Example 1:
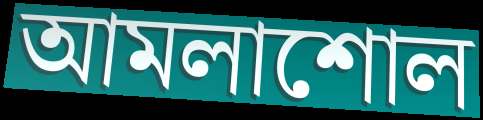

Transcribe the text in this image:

আমলাশোল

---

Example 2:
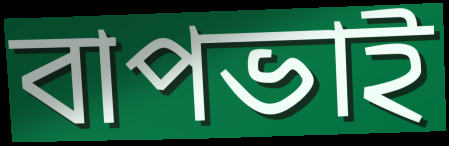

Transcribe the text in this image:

বাপভাই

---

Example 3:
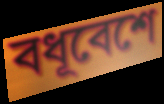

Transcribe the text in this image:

বধূবেশে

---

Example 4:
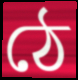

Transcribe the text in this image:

ঠে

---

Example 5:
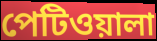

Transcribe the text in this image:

পেটিওয়ালা